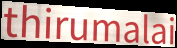
thirumalai